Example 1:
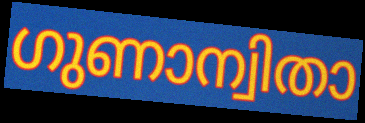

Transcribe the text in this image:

ഗുണാന്വിതാ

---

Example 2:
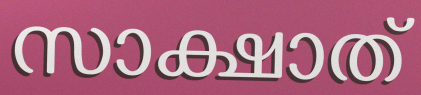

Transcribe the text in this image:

സാക്ഷാത്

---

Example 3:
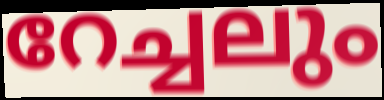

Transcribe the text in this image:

റേച്ചലും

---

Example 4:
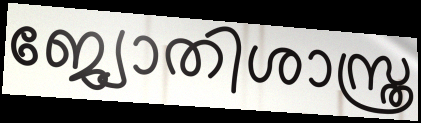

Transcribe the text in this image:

ജ്യോതിശാസ്ത്ര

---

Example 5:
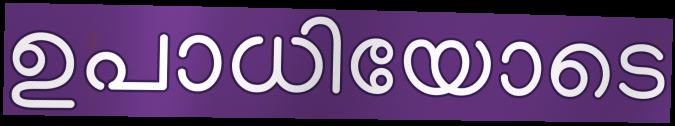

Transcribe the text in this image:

ഉപാധിയോടെ